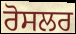
ਰੋਸਲਰ